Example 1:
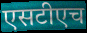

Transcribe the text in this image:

एसटीएच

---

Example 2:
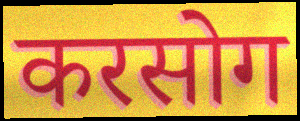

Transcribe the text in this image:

करसोग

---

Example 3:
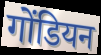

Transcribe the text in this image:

गोंडियन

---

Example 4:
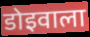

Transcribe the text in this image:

डोइवाला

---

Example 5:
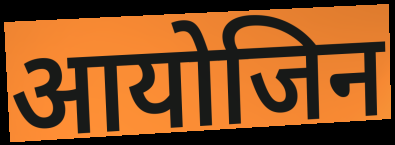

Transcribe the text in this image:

आयोजिन